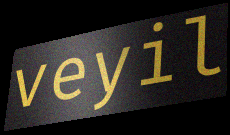
veyil